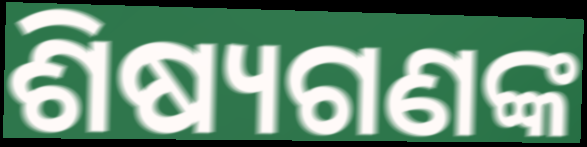
ଶିଷ୍ୟଗଣଙ୍କ